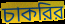
চাকরির